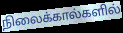
நிலைக்கால்களில்